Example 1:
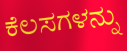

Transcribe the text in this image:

ಕೆಲಸಗಳನ್ನು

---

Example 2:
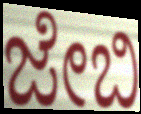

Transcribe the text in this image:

ಜೇಬಿ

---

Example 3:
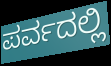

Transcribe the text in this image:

ಪರ್ವದಲ್ಲಿ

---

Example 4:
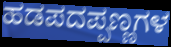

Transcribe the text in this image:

ಹಡಪದಪ್ಪಣ್ಣಗಳ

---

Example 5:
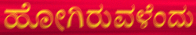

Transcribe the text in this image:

ಹೋಗಿರುವಳೆಂದು